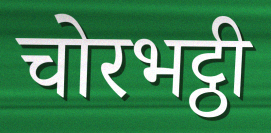
चोरभट्ठी